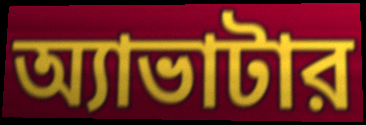
অ্যাভাটার